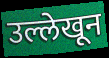
उल्लेखून